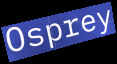
Osprey